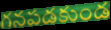
గనపడకుండ